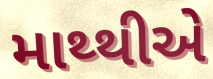
માથ્થીએ